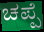
ಚಪ್ಪೆ